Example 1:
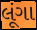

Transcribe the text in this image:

લૂંગા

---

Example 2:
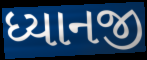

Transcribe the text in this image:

ધ્યાનજી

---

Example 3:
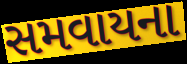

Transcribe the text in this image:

સમવાયના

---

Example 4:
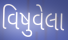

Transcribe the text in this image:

વિષુવેલા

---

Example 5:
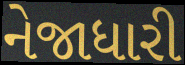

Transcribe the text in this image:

નેજાધારી